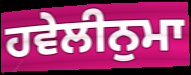
ਹਵੇਲੀਨੁਮਾ